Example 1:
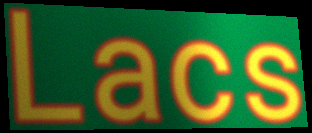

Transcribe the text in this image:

Lacs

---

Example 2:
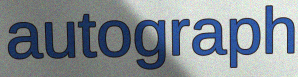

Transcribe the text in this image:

autograph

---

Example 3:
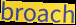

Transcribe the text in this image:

broach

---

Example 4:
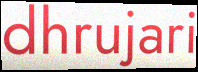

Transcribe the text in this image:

dhrujari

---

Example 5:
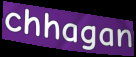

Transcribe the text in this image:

chhagan